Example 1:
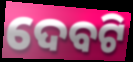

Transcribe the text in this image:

ଦେବଟି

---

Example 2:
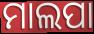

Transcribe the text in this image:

ମାଲପା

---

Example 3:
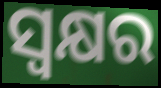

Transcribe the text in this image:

ସ୍ୱକ୍ଷର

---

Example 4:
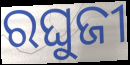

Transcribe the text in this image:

ରଘୁଜୀ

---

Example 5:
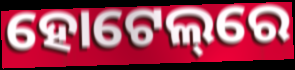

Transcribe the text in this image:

ହୋଟେଲ୍‌ରେ